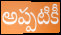
అప్పటికీ